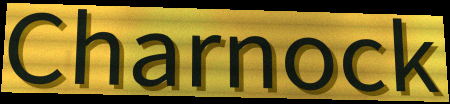
Charnock